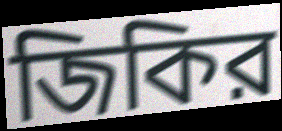
জিকির